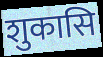
शुकासि